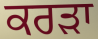
ਕਰੜਾ